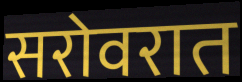
सरोवरात